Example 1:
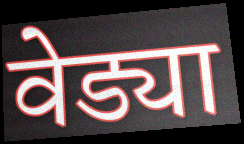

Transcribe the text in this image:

वेड्या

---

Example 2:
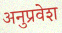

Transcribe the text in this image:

अनुप्रवेश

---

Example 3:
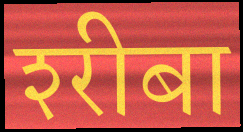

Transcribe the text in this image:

श्रीबा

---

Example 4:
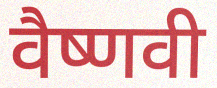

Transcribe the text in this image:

वैष्णवी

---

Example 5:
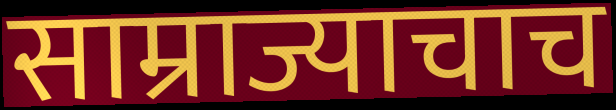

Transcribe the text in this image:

साम्राज्याचाच